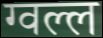
ग्वल्ल